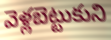
వెళ్లబెట్టుకుని